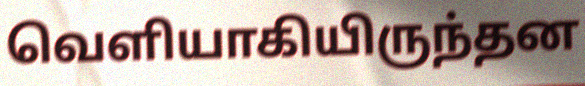
வெளியாகியிருந்தன